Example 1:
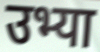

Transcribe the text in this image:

उभ्या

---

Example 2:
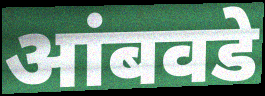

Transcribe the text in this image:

आंबवडे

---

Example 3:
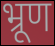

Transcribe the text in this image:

भ्रूण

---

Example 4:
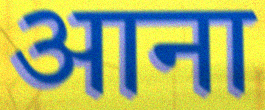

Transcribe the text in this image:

आना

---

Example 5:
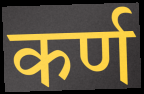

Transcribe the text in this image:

कर्ण